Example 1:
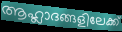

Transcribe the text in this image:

ആഹ്ലാദങ്ങളിലേക്ക്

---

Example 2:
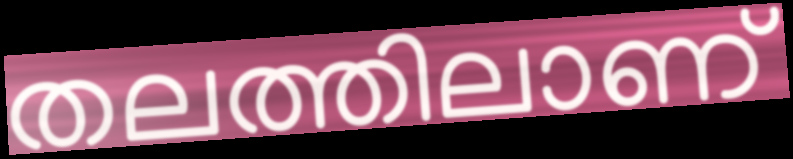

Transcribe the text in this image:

തലത്തിലാണ്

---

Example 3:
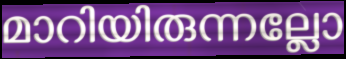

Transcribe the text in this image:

മാറിയിരുന്നല്ലോ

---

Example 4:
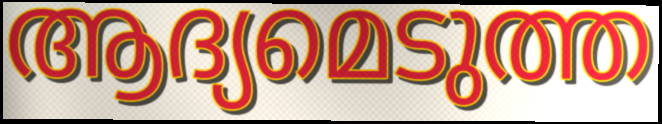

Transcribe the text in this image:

ആദ്യമെടുത്ത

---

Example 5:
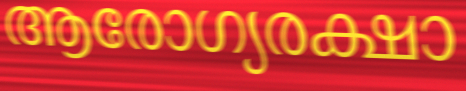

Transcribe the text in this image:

ആരോഗ്യരക്ഷാ